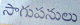
సాగుపనులు